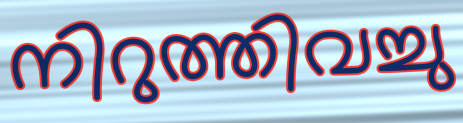
നിറുത്തിവച്ചു